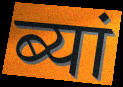
ब्यां